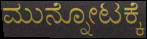
ಮುನ್ನೋಟಕ್ಕೆ